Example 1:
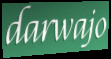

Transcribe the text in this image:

darwajo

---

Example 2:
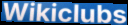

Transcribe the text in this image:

Wikiclubs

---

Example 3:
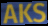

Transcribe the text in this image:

AKS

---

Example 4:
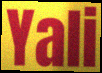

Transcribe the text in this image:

Yali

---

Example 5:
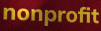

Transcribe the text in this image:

nonprofit